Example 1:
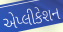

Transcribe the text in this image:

એપ્લીકેશન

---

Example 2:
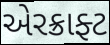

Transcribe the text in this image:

એરક્રાફ્ટ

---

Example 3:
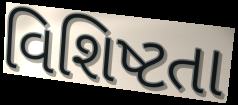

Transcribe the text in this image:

વિશિષ્ટતા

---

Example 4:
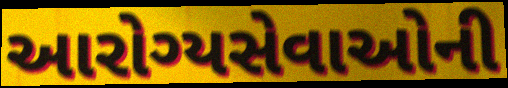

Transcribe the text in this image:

આરોગ્યસેવાઓની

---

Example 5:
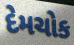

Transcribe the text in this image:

દેમચોક